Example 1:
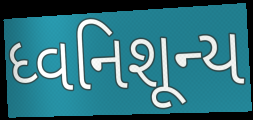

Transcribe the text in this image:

ધ્વનિશૂન્ય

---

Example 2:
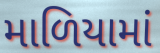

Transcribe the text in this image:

માળિયામાં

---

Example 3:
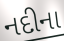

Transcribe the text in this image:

નદીના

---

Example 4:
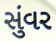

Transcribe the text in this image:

સુંવર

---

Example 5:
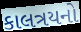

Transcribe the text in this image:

કાલત્રયનો